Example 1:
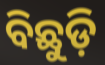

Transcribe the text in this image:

ବିଛୁଡ଼ି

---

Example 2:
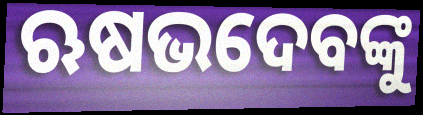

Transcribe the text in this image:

ଋଷଭଦେବଙ୍କୁ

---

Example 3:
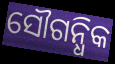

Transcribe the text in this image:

ସୌଗନ୍ଧିକ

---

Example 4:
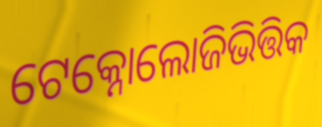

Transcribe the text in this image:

ଟେକ୍ନୋଲୋଜିଭିତ୍ତିକ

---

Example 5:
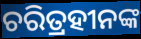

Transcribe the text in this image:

ଚରିତ୍ରହୀନଙ୍କ